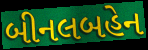
બીનલબહેન